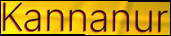
Kannanur